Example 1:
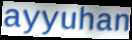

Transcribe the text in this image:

ayyuhan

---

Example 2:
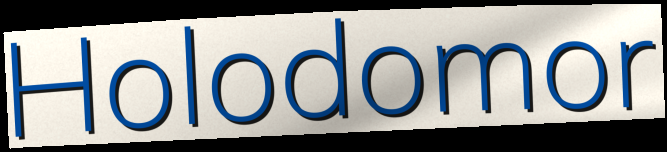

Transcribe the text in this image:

Holodomor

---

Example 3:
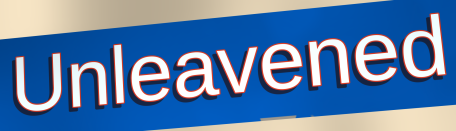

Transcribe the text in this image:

Unleavened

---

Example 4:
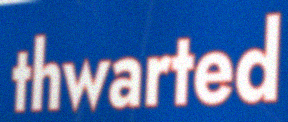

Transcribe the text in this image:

thwarted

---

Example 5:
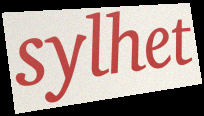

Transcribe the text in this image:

sylhet